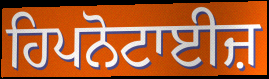
ਹਿਪਨੋਟਾਈਜ਼